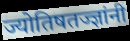
ज्योतिषतज्ज्ञांनी